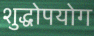
शुद्धोपयोग